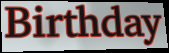
Birthday